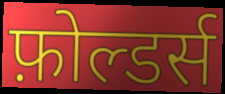
फ़ोल्डर्स